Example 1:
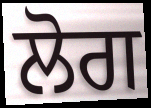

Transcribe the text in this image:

ਲੋਗ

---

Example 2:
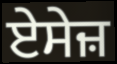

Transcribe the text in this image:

ਏਸੇਜ਼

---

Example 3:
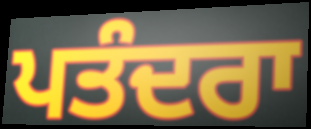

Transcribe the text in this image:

ਪਤੰਦਰਾ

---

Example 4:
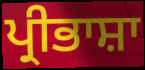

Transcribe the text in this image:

ਪ੍ਰੀਭਾਸ਼ਾ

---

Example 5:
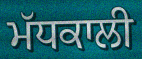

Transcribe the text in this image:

ਮੱਧਕਾਲੀ